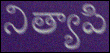
నిత్యాపి